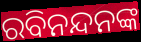
ରବିନନ୍ଦନଙ୍କ